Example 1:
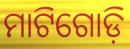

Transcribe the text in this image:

ମାଟିଗୋଡ଼ି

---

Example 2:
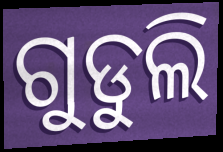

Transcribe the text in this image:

ଗୁଡୁଲି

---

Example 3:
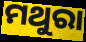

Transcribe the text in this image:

ମଥୁରା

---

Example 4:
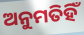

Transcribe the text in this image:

ଅନୁମତିହିଁ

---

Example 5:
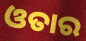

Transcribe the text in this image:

ଓତାର